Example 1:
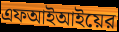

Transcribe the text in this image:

এফআইআইয়ের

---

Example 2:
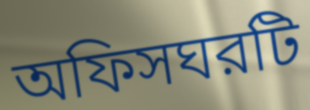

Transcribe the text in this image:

অফিসঘরটি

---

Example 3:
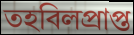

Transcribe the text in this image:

তহবিলপ্রাপ্ত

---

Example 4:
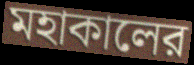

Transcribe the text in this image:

মহাকালের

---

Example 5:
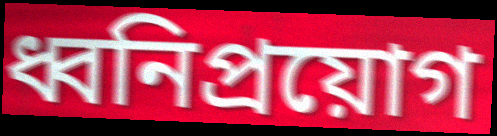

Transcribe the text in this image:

ধ্বনিপ্রয়োগ